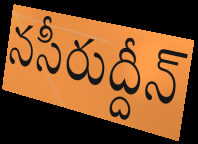
నసీరుద్దీన్